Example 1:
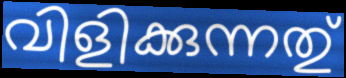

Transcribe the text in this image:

വിളിക്കുന്നതു്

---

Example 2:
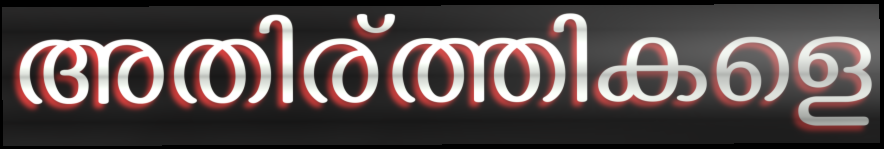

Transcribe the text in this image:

അതിര്ത്തികളെ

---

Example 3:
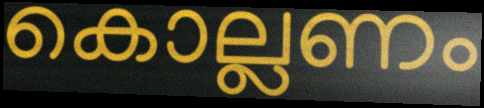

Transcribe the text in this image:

കൊല്ലണം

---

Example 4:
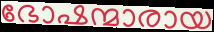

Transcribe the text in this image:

ഭോഷന്മാരായ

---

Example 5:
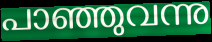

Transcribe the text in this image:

പാഞ്ഞുവന്നു